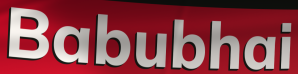
Babubhai